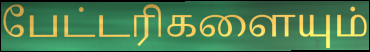
பேட்டரிகளையும்